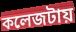
কলেজটায়